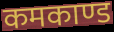
कमकाण्ड